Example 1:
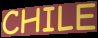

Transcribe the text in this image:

CHILE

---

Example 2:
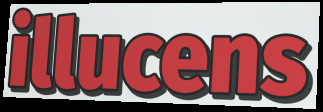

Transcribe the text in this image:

illucens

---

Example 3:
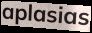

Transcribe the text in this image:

aplasias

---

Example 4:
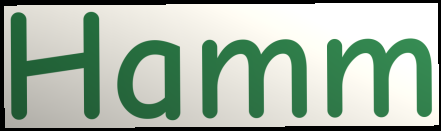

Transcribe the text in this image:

Hamm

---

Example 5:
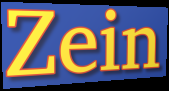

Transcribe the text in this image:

Zein